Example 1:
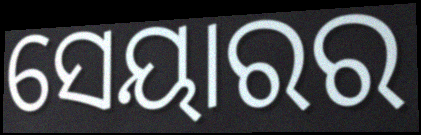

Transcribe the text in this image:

ସେୟାରର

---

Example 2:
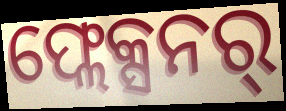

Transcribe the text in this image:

ଫ୍ଲେକ୍ସନର୍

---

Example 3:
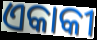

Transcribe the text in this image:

ଏକାକୀ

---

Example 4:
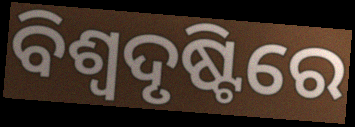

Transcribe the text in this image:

ବିଶ୍ଵଦୃଷ୍ଟିରେ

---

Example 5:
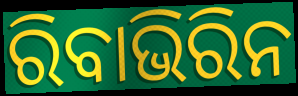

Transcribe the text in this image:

ରିବାଭିରିନ